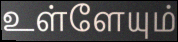
உள்ளேயும்